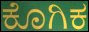
ಕೊಗಿಕ